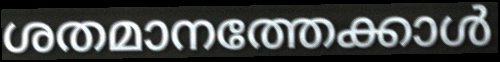
ശതമാനത്തേക്കാൾ